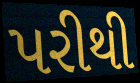
પરીથી